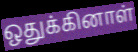
ஒதுக்கினாள்